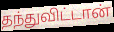
தந்துவிட்டான்